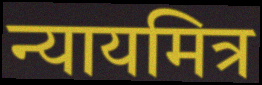
न्यायमित्र